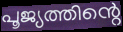
പൂജ്യത്തിന്റെ